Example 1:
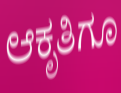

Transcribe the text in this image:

ಆಕೃತಿಗೂ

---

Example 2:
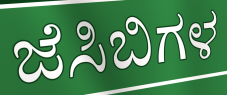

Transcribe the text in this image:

ಜೆಸಿಬಿಗಳ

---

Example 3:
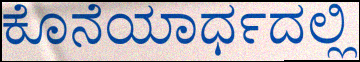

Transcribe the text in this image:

ಕೊನೆಯಾರ್ಧದಲ್ಲಿ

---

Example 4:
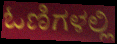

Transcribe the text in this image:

ಓಣಿಗಳಲ್ಲಿ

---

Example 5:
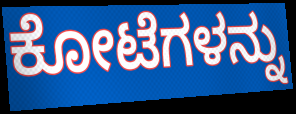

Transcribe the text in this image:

ಕೋಟೆಗಳನ್ನು